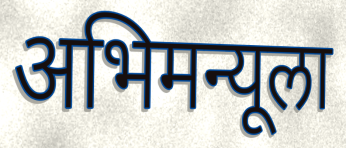
अभिमन्यूला